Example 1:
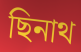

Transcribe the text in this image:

ছিনাথ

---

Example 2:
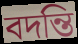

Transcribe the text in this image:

বদন্তি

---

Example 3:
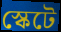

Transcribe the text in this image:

স্কেটে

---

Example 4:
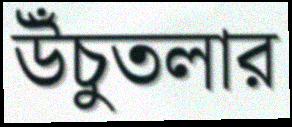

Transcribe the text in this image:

উঁচুতলার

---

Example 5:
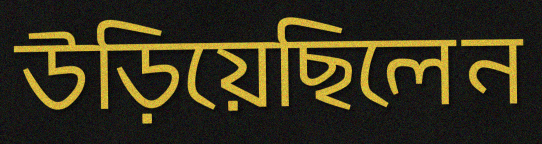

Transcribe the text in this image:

উড়িয়েছিলেন